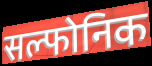
सल्फोनिक